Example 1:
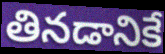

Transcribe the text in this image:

తినడానికే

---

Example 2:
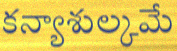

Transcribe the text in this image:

కన్యాశుల్కమే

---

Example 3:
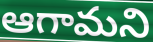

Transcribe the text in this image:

ఆగామని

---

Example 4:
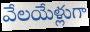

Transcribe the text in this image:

వేలయేళ్లుగా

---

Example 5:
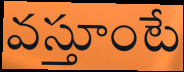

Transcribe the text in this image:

వస్తూంటే